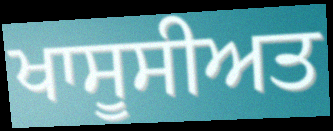
ਖਾਸੂਸੀਅਤ